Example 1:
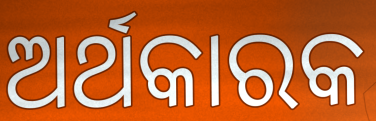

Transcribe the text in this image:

ଅର୍ଥକାରକ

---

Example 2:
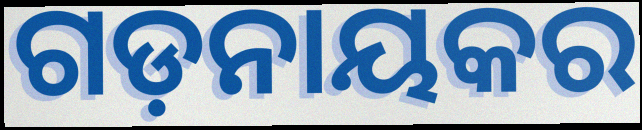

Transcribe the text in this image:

ଗଡ଼ନାୟକର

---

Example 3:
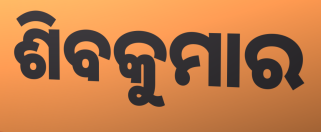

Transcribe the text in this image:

ଶିବକୁମାର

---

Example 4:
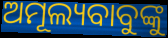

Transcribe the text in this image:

ଅମୂଲ୍ୟବାବୁଙ୍କୁ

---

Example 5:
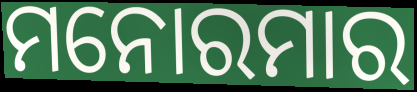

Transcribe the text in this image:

ମନୋରମାର